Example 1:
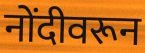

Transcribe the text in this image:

नोंदीवरून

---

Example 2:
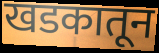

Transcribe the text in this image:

खडकातून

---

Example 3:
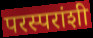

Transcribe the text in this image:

परस्परांशी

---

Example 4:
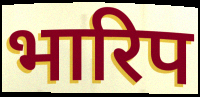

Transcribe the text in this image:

भारिप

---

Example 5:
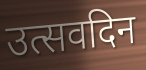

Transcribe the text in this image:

उत्सवदिन